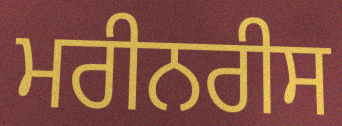
ਮਰੀਨਰੀਸ